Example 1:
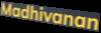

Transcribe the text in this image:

Madhivanan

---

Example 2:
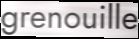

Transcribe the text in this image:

grenouille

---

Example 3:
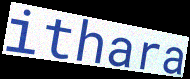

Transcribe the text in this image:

ithara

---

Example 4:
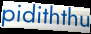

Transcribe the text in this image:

pidiththu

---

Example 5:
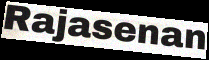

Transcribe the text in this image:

Rajasenan